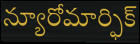
న్యూరోమార్ఫిక్